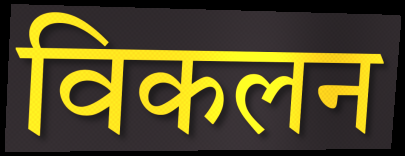
विकलन